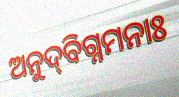
ଅନୁଦ୍‌ବିଗ୍ନମନାଃ